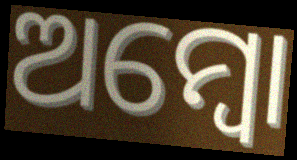
ଅମ୍ୱୋ